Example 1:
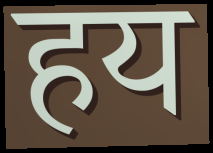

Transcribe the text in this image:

हय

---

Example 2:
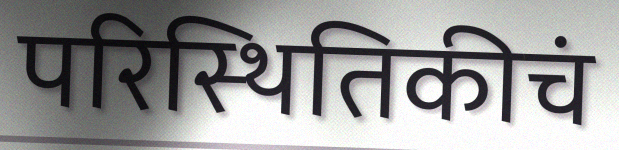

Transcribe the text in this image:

परिस्थितिकीचं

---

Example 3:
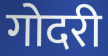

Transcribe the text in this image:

गोदरी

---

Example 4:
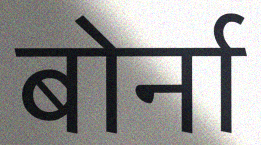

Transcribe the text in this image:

बोर्ना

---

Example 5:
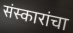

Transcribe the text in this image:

संस्कारांचा